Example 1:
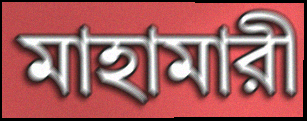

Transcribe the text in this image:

মাহামারী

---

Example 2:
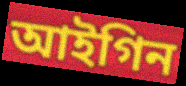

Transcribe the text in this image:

আইগিন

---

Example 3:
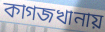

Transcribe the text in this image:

কাগজখানায়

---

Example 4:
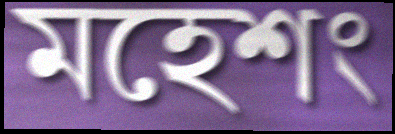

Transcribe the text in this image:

মহেশং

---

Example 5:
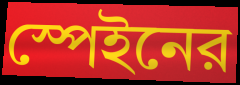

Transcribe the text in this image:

স্পেইনের